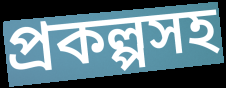
প্রকল্পসহ